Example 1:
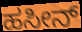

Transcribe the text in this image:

ಹಸೀನ್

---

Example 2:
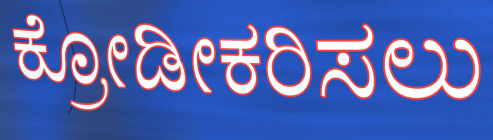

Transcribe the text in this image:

ಕ್ರೋಡೀಕರಿಸಲು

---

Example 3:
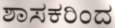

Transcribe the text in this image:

ಶಾಸಕರಿಂದ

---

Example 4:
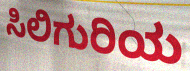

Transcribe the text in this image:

ಸಿಲಿಗುರಿಯ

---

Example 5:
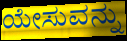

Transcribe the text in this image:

ಯೇಸುವನ್ನು